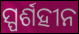
ସ୍ପର୍ଶହୀନ